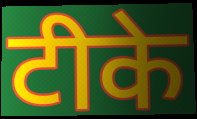
टीके